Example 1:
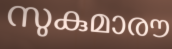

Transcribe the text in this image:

സുകുമാരൗ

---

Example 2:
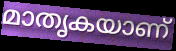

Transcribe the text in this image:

മാതൃകയാണ്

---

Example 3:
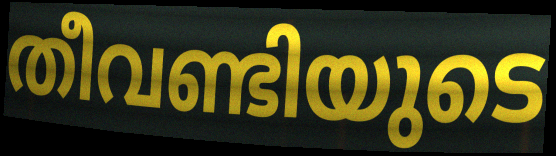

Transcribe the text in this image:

തീവണ്ടിയുടെ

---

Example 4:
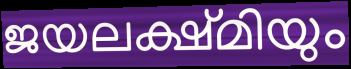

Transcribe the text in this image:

ജയലക്ഷ്മിയും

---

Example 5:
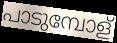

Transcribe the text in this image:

പാടുമ്പോള്